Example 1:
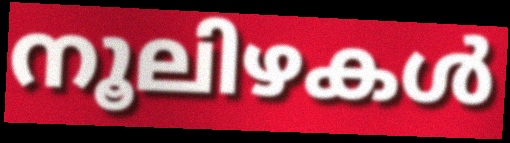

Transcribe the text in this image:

നൂലിഴകൾ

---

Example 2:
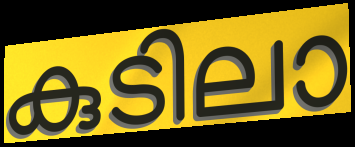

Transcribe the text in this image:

കുടിലാ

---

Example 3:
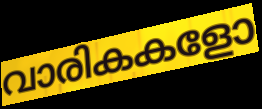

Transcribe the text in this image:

വാരികകളോ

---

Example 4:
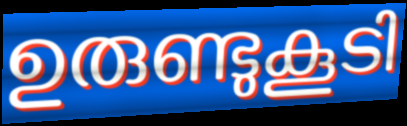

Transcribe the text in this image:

ഉരുണ്ടുകൂടി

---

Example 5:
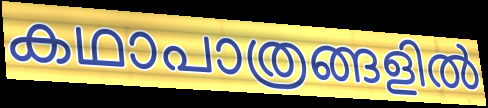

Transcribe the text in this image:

കഥാപാത്രങ്ങളിൽ